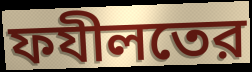
ফযীলতের